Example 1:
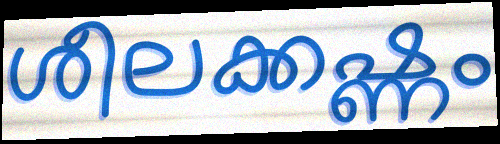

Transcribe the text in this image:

ശീലക്കഷ്ണം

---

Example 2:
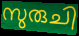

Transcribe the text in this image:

സുരുചി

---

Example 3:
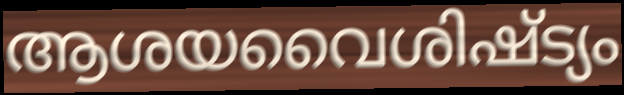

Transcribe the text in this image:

ആശയവൈശിഷ്ട്യം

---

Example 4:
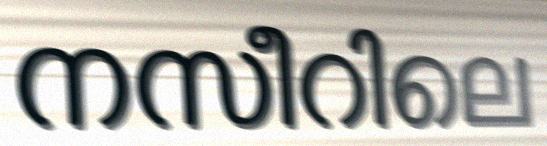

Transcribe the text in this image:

നസീറിലെ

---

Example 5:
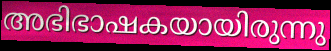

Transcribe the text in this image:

അഭിഭാഷകയായിരുന്നു